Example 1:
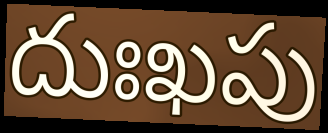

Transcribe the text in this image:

దుఃఖపు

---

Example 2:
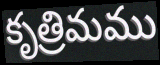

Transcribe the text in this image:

కృత్రిమము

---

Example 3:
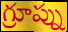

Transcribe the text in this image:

గ్రూప్ను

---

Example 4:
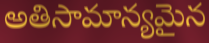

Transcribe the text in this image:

అతిసామాన్యమైన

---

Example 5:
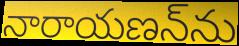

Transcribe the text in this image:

నారాయణన్‌ను